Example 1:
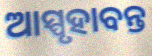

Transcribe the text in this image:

ଆସ୍ପୃହାବନ୍ତ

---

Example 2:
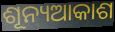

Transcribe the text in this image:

ଶୂନ୍ୟଆକାଶ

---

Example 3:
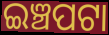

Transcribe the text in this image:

ଇଞ୍ଚପଟା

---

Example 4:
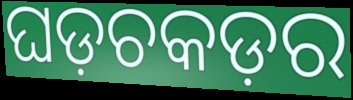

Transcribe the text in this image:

ଘଡ଼ଚକଡ଼ର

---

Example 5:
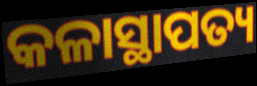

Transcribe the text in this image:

କଳାସ୍ଥାପତ୍ୟ